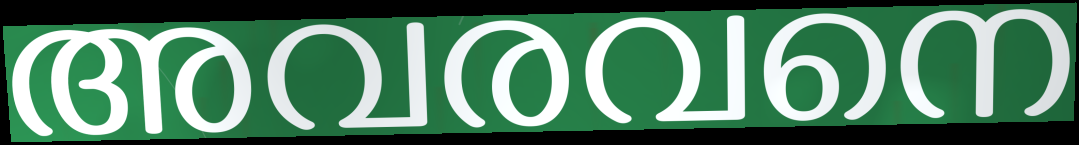
അവരവനെ